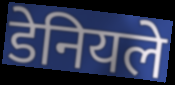
डेनियले